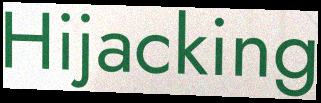
Hijacking